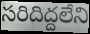
సరిదిద్దలేని